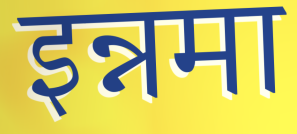
इन्नमा